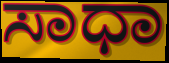
ಸಾಧಾ